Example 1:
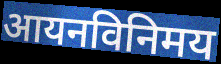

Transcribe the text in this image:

आयनविनिमय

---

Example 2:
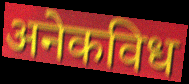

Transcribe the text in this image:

अनेकविध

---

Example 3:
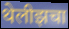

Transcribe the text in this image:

थेलीझचा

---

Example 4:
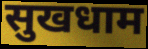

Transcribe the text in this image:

सुखधाम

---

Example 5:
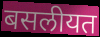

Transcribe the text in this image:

बसलीयत